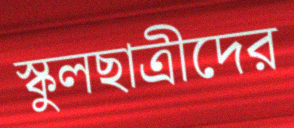
স্কুলছাত্রীদের